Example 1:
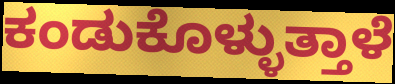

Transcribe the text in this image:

ಕಂಡುಕೊಳ್ಳುತ್ತಾಳೆ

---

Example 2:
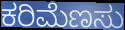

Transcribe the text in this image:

ಕರಿಮೆಣಸು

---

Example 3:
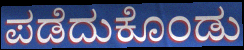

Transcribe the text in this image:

ಪಡೆದುಕೊಂಡು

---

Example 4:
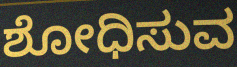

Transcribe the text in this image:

ಶೋಧಿಸುವ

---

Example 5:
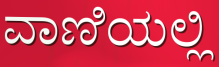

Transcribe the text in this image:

ವಾಣಿಯಲ್ಲಿ